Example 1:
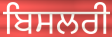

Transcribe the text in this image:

ਬਿਸਲਰੀ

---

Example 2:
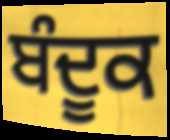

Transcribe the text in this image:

ਬੰਦੂਕ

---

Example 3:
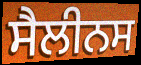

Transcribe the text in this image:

ਸੈਲੀਨਸ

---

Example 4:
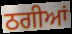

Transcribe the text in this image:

ਠਗੀਆਂ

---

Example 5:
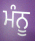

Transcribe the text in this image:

ਮੰਨੂ